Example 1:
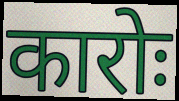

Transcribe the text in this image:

कारोः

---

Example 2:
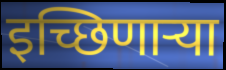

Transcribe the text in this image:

इच्छिणार्‍या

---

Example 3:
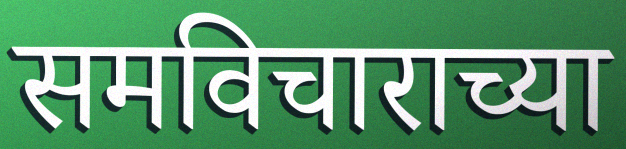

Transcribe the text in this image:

समविचाराच्या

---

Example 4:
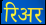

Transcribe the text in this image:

रिअर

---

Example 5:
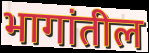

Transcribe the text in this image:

भागांतील